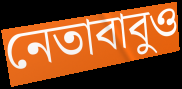
নেতাবাবুও